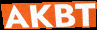
AKBT